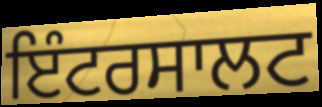
ਇੰਟਰਸਾਲਟ